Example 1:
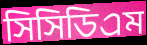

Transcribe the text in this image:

সিসিডিএম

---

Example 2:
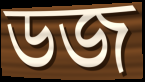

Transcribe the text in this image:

ডজ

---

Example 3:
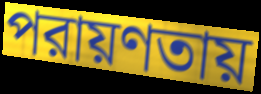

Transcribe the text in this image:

পরায়ণতায়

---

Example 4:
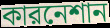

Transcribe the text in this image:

কারনেশান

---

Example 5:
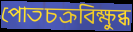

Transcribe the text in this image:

পোতচক্রবিক্ষুব্ধ